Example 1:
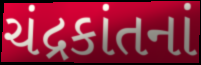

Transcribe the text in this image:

ચંદ્રકાંતનાં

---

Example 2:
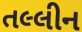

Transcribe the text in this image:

તલ્લીન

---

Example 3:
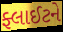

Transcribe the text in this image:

ફ્લાઈટને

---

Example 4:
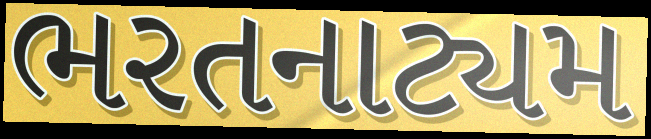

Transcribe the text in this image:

ભરતનાટ્યમ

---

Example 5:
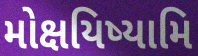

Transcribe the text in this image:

મોક્ષયિષ્યામિ